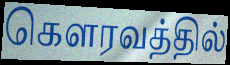
கௌரவத்தில்